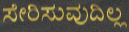
ಸೇರಿಸುವುದಿಲ್ಲ